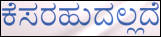
ಕೆಸರಹುದಲ್ಲದೆ